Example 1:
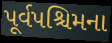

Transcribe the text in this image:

પૂર્વપશ્ચિમના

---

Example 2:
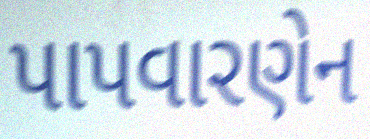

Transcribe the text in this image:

પાપવારણેન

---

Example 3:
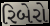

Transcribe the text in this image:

રિબેરો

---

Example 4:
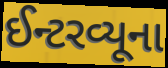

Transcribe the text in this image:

ઈન્ટરવ્યૂના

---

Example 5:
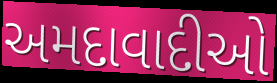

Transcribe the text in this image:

અમદાવાદીઓ